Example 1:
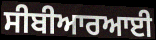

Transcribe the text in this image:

ਸੀਬੀਆਰਆਈ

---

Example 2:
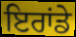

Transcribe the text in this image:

ਇਰਾਂਡੇ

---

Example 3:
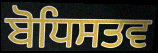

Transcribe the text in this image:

ਬੋਧਿਸਤਵ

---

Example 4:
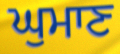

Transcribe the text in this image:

ਘੁਮਾਣ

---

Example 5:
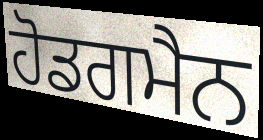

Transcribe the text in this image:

ਹੋਡਗਮੈਨ